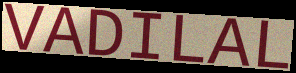
VADILAL